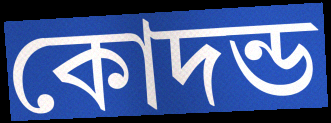
কোদন্ড